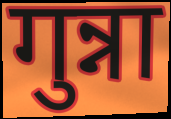
गुन्ना